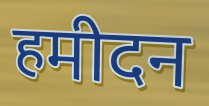
हमीदन